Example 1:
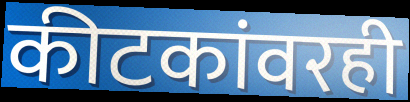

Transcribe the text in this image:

कीटकांवरही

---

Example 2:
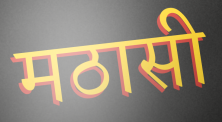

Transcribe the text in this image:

मठासी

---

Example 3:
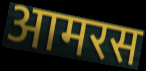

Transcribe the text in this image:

आमरस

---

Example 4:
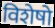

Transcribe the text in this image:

विशेषो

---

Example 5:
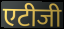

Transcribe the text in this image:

एटीजी